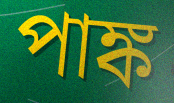
পাঙ্ক